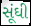
સૂંઘી